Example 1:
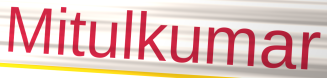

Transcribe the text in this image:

Mitulkumar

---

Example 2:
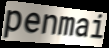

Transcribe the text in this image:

penmai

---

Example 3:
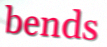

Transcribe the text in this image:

bends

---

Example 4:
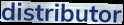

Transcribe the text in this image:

distributor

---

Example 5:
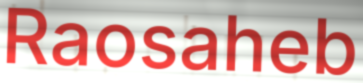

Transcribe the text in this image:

Raosaheb